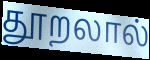
தூறலால்